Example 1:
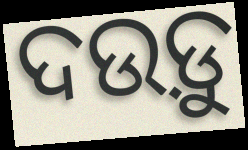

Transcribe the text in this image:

ଦଉଡ଼ୁ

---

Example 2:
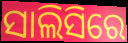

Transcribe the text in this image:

ସାଲିସିରେ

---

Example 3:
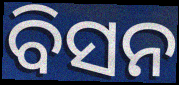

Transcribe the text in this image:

ବିସନ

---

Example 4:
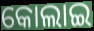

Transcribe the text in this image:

କୋଲାଇ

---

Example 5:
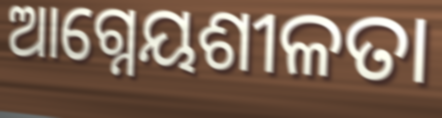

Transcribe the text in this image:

ଆଗ୍ନେୟଶୀଳତା